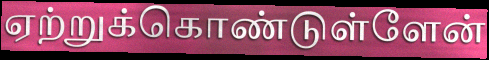
ஏற்றுக்கொண்டுள்ளேன்